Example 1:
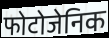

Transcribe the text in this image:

फोटोजेनिक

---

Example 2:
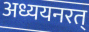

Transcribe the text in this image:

अध्ययनरत्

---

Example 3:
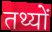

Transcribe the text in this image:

तथ्यों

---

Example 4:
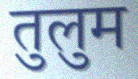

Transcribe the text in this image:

तुलुम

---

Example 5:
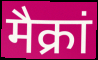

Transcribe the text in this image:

मैक्रां